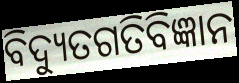
ବିଦ୍ୟୁତଗତିବିଜ୍ଞାନ